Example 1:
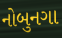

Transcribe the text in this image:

નોબુનગા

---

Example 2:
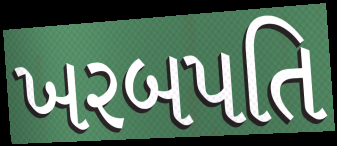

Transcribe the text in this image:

ખરબપતિ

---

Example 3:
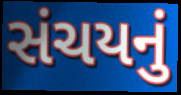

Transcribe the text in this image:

સંચયનું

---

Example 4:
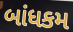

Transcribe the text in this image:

બાંધકમ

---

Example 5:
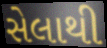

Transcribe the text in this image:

સેલાથી